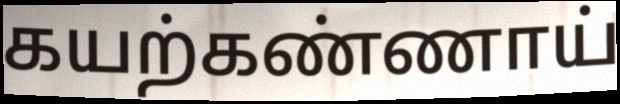
கயற்கண்ணாய்